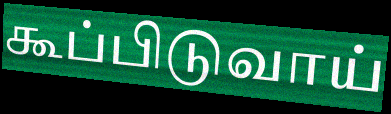
கூப்பிடுவாய்